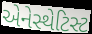
એનેસ્થેટિસ્ટ